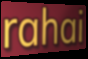
rahai